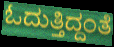
ಓದುತ್ತಿದ್ದಂತೆ